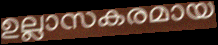
ഉല്ലാസകരമായ